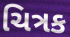
ચિત્રક